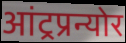
आंट्रप्रन्योर